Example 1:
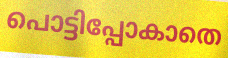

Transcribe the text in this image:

പൊട്ടിപ്പോകാതെ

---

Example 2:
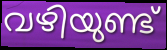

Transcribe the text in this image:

വഴിയുണ്ട്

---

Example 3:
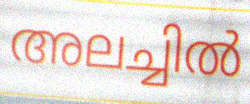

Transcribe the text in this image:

അലച്ചിൽ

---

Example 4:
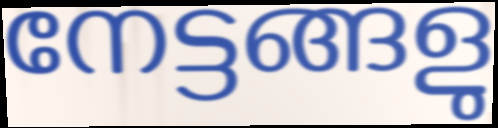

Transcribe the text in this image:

നേട്ടങ്ങളു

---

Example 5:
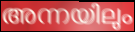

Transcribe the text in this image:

അന്നയിലും